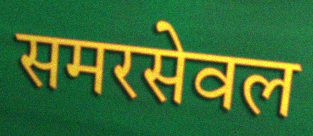
समरसेवल